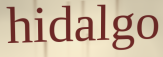
hidalgo